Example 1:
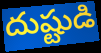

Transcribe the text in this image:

దుష్టుడి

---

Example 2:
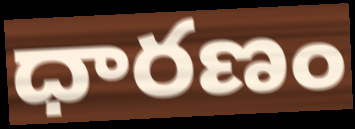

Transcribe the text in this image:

ధారణం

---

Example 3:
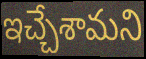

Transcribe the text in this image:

ఇచ్చేశామని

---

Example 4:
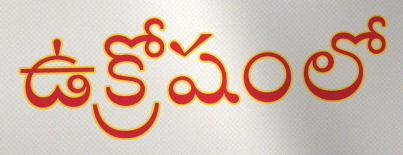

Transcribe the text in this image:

ఉక్రోషంలో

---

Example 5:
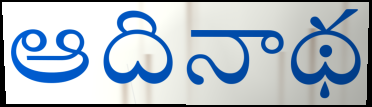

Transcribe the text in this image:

ఆదినాథ